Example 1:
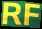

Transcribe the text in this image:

RF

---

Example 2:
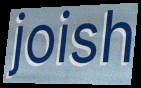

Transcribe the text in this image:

joish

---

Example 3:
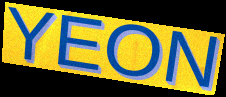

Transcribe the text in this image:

YEON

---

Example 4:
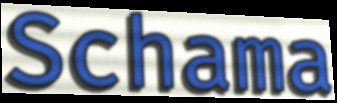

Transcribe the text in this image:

Schama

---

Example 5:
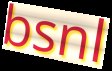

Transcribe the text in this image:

bsnl